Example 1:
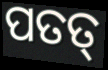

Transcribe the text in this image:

ପତତ୍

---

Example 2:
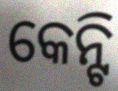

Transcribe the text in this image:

କେନ୍ଟି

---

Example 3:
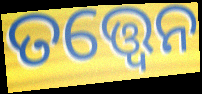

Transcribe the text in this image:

ତତ୍ତ୍ଵେନ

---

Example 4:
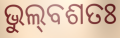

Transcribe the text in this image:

ଭୁଲ୍‌ବଶତଃ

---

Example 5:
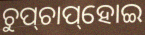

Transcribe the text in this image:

ଚୁପ୍‌ଚାପ୍‌ହୋଇ